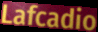
Lafcadio